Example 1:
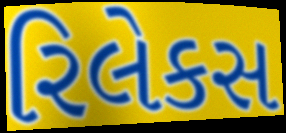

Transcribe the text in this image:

રિલેકસ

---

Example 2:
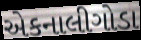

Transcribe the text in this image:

એકનાલીગોડા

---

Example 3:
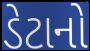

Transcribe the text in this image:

ડેટાનો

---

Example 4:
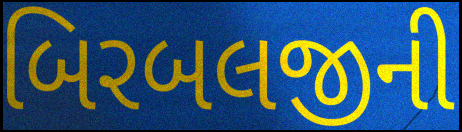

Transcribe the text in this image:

બિરબલજીની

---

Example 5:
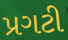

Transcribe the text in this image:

પ્રગટી